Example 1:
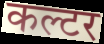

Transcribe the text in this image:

कल्टर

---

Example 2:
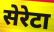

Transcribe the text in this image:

सेरेटा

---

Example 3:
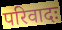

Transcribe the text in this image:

परिवादः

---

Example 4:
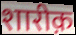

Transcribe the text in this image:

शारीक़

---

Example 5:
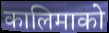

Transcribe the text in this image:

कालिमाको